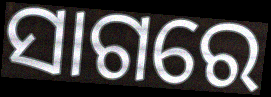
ସାଗରେ